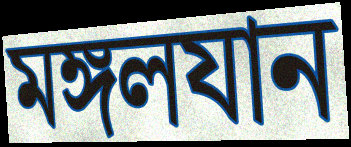
মঙ্গলযান